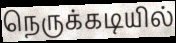
நெருக்கடியில்